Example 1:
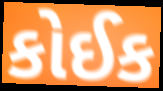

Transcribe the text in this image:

કોઈક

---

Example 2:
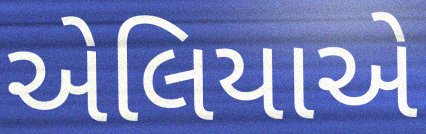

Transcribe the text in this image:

એલિયાએ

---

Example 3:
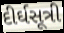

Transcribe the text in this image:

દીર્ઘસૂત્રી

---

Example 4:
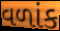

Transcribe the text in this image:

વળાંક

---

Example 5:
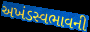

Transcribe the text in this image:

અખંડસ્વભાવની